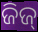
ଜିଜ୍